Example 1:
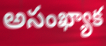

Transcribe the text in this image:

అసంఖ్యాక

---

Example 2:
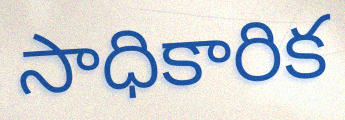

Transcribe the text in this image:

సాధికారిక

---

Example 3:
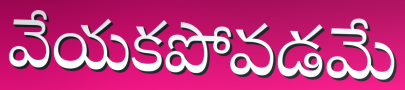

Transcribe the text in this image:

వేయకపోవడమే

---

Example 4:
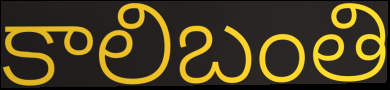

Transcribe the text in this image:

కాలిబంతి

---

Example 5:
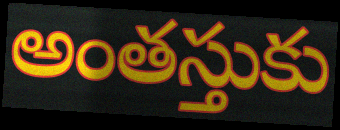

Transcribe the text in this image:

అంతస్తుకు